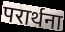
परार्थना